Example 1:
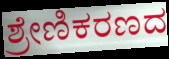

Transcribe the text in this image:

ಶ್ರೇಣಿಕರಣದ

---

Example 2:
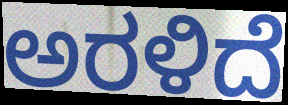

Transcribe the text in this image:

ಅರಳಿದೆ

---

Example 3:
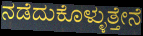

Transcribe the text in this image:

ನಡೆದುಕೊಳ್ಳುತ್ತೇನೆ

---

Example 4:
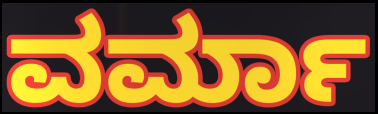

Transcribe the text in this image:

ವರ್ಮಾ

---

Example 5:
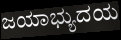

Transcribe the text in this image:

ಜಯಾಭ್ಯುದಯ